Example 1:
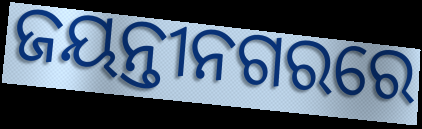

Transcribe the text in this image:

ଜୟନ୍ତୀନଗରରେ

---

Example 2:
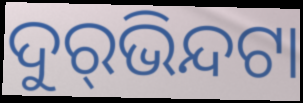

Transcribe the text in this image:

ଦୁର୍‌ଭିନ୍ଦଟା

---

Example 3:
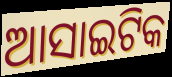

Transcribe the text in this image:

ଆସାଇଟିକ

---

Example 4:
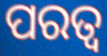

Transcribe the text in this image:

ପରତ୍ୱ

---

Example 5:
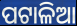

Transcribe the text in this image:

ପଟାଳିଆ